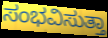
ಸಂಭವಿಸುತ್ತಾ